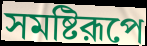
সমষ্টিরূপে